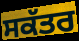
ਸਕੱਤਰ